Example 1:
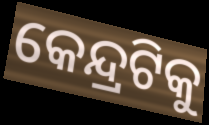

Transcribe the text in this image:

କେନ୍ଦ୍ରଟିକୁ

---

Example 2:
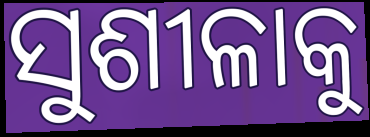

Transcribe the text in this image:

ସୁଶୀଳାକୁ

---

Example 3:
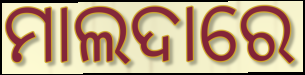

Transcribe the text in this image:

ମାଲଦାରେ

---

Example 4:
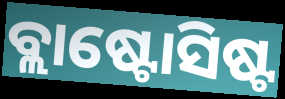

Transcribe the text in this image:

ବ୍ଲାଷ୍ଟୋସିଷ୍ଟ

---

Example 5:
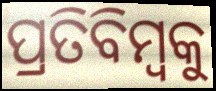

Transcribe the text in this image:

ପ୍ରତିବିମ୍ୱକୁ